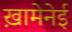
ख़ामेनेई